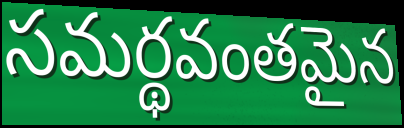
సమర్థవంతమైన